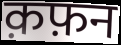
क़फ़न